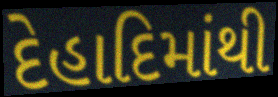
દેહાદિમાંથી